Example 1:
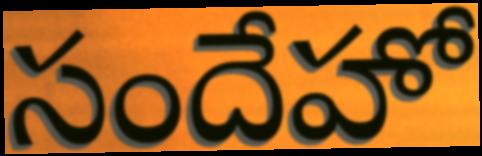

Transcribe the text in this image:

సందేహో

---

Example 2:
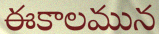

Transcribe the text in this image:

ఈకాలమున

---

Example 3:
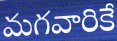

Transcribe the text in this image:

మగవారికే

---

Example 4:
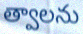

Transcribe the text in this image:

త్వాలను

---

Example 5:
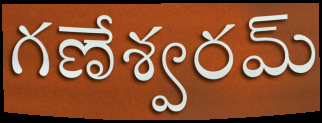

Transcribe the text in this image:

గణేశ్వరమ్